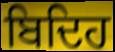
ਬਿਦਿਹ